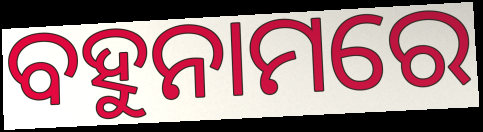
ବହୁନାମରେ